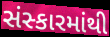
સંસ્કારમાંથી